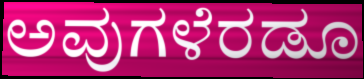
ಅವುಗಳೆರಡೂ